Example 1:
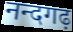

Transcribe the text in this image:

नन्दगढ़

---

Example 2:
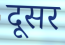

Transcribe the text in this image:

दूसर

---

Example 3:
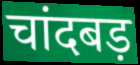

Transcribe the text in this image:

चांदबड़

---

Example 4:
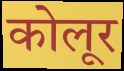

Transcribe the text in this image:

कोलूर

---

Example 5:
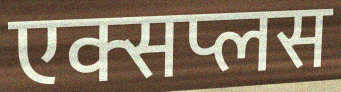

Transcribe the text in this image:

एक्सप्लस